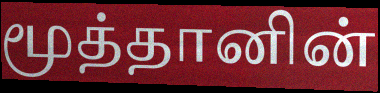
மூத்தானின்